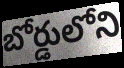
బోర్డులోని